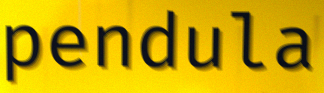
pendula